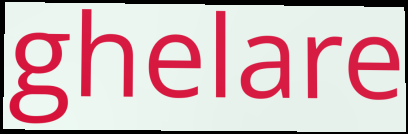
ghelare